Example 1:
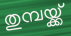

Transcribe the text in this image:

തുമ്പയ്ക്ക്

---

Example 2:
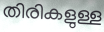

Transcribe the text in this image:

തിരികളുള്ള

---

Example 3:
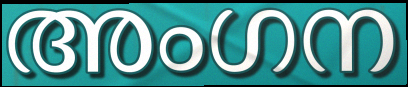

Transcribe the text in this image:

അംഗന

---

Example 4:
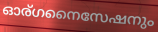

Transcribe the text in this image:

ഓര്ഗനൈസേഷനും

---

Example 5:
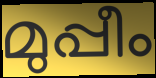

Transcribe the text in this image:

മുപ്പീം